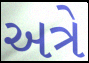
અત્રે